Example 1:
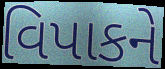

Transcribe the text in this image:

વિપાકને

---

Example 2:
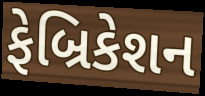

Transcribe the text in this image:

ફેબ્રિકેશન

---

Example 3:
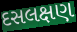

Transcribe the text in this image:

દસલક્ષણ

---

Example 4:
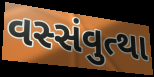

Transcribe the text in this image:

વસ્સંવુત્થા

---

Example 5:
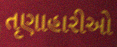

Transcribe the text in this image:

તૃણાહારીઓ